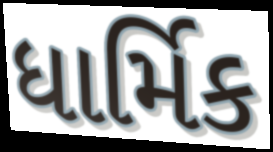
ધાર્મિક